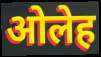
ओलेह